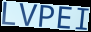
LVPEI